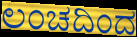
ಲಂಚದಿಂದ